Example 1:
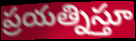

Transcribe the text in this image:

ప్రయత్నిస్తూ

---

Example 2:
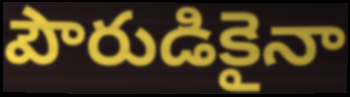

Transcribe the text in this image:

పౌరుడికైనా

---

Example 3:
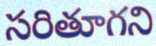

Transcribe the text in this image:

సరితూగని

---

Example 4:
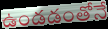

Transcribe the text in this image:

ఉండడంతోనే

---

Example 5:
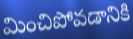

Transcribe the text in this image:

మించిపోవడానికి